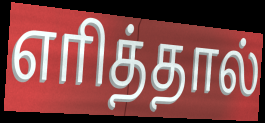
எரித்தால்